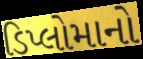
ડિપ્લોમાનો